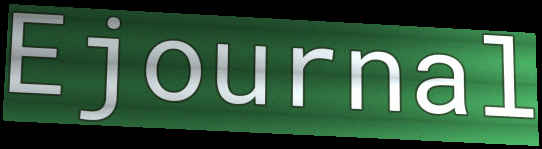
Ejournal